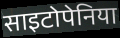
साइटोपेनिया